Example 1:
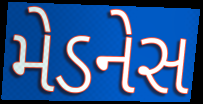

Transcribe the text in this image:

મેડનેસ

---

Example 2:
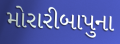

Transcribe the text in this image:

મોરારીબાપુના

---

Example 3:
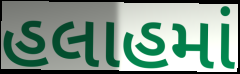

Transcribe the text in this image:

હલાહમાં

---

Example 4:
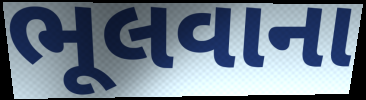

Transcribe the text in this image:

ભૂલવાના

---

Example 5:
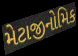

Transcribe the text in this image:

મેટાજીનોમિક